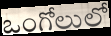
ఒంగోలులో